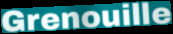
Grenouille